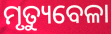
ମୃତ୍ୟୁବେଳା